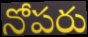
నోపరు